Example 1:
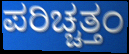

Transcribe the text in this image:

ಪರಿಚ್ಚತ್ತಂ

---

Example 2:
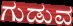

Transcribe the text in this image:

ಗುಡುವ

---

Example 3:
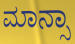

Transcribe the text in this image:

ಮಾನ್ಸಾ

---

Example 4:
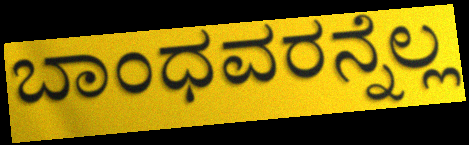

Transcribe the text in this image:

ಬಾಂಧವರನ್ನೆಲ್ಲ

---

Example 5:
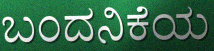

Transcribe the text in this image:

ಬಂದನಿಕೆಯ